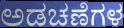
ಅಡಚಣೆಗಳ